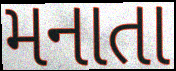
મનાતા